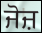
ਜੋਜ਼